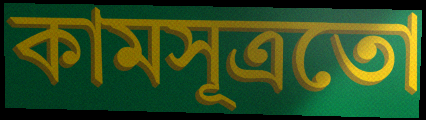
কামসূত্ৰতো